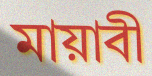
মায়াবী